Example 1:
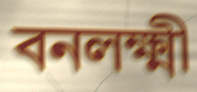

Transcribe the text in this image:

বনলক্ষ্মী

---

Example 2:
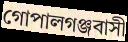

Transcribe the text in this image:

গোপালগঞ্জবাসী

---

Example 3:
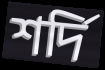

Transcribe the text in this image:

শর্দি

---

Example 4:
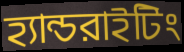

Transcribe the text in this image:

হ্যান্ডরাইটিং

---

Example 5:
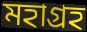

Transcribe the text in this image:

মহাগ্রহ